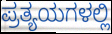
ಪ್ರತ್ಯಯಗಳಲ್ಲಿ